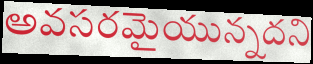
అవసరమైయున్నదని